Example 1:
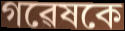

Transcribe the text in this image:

গৱেষকে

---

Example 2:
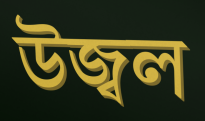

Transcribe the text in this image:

উজ্বল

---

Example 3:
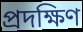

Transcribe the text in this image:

প্ৰদক্ষিণ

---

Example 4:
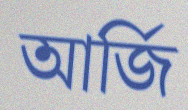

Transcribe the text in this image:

আৰ্জি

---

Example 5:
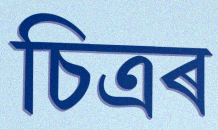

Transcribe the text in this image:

চিত্ৰৰ